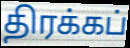
திரக்கப்